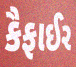
કૈફાઈર